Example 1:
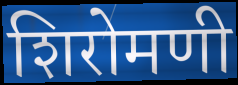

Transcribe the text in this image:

शिरोमणी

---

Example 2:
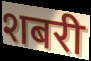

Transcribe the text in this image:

शबरी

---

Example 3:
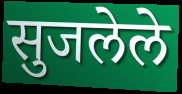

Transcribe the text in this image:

सुजलेले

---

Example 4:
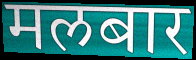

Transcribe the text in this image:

मलबार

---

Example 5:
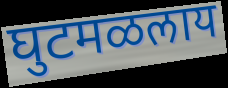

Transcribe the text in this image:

घुटमळलाय